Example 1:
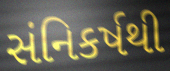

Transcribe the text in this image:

સંનિકર્ષથી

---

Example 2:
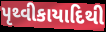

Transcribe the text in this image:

પૃથ્વીકાયાદિથી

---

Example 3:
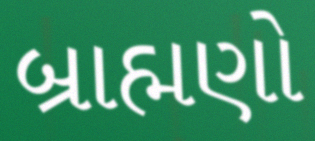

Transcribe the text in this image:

બ્રાહ્મણો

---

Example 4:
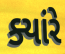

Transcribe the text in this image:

ક્યાંરે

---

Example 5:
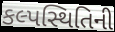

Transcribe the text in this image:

કલ્પસ્થિતિની